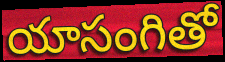
యాసంగితో